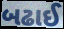
બઢાઈ